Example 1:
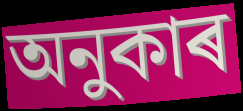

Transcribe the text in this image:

অনুকাৰ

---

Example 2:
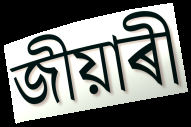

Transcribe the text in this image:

জীয়াৰী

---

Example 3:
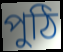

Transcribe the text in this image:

পুঠি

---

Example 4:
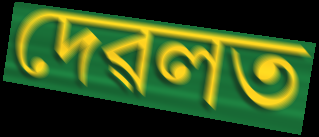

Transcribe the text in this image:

দেৱলত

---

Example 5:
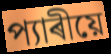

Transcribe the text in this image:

প্যাৰীয়ে